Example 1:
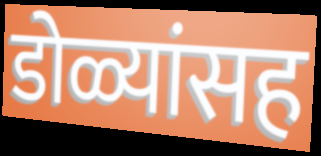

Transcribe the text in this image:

डोळ्यांसह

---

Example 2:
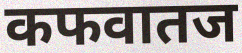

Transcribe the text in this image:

कफवातज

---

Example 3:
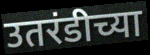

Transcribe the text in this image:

उतरंडीच्या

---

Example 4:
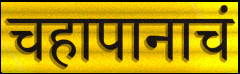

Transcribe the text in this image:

चहापानाचं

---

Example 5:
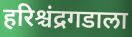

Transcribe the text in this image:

हरिश्चंद्रगडाला